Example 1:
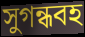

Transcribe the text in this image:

সুগন্ধবহ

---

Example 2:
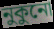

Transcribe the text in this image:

নুকুনো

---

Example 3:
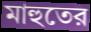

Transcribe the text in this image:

মাহুতের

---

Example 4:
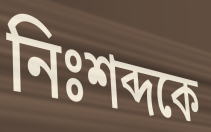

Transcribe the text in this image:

নিঃশব্দকে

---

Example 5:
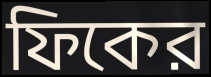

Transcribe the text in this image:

ফিকের